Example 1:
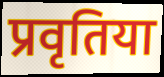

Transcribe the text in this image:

प्रवृतिया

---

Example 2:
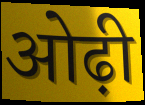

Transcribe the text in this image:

ओढ़ी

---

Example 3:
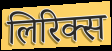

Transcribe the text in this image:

लिरिक्स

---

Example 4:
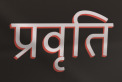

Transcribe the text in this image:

प्रवृति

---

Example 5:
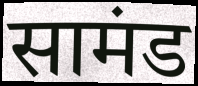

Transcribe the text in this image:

सामंड